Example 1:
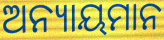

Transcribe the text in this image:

ଅନ୍ୟାୟମାନ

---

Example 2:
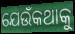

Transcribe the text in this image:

ଯେଉଁକଥାକୁ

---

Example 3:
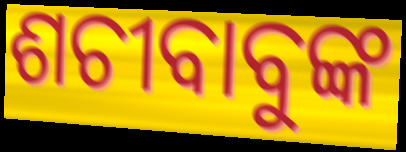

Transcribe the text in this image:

ଶଚୀବାବୁଙ୍କ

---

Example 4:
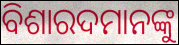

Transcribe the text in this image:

ବିଶାରଦମାନଙ୍କୁ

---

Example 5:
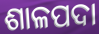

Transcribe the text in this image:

ଶାଳପଦା